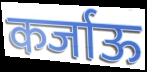
कर्जाऊ